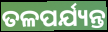
ତଳପର୍ଯ୍ୟନ୍ତ